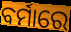
ବର୍ମାରେ